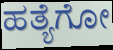
ಹತ್ಯೆಗೋ